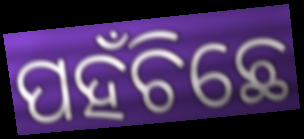
ପହଁଚିଛେ